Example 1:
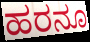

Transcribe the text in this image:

ಹರನೂ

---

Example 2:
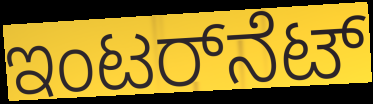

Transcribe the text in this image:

ಇಂಟರ್‌ನೆಟ್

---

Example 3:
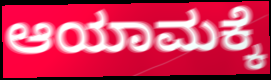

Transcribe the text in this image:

ಆಯಾಮಕ್ಕೆ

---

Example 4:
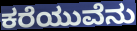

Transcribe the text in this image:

ಕರೆಯುವೆನು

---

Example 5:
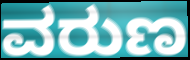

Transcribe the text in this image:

ವರುಣ